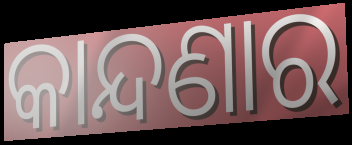
କାନ୍ଦଣାର